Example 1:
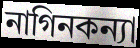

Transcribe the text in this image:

নাগিনকন্যা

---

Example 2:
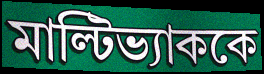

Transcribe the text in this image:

মাল্টিভ্যাককে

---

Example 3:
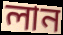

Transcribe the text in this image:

লান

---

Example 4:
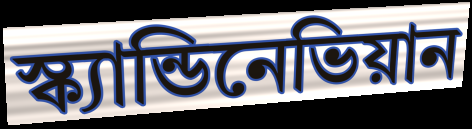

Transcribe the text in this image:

স্ক্যান্ডিনেভিয়ান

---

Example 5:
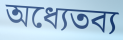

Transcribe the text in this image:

অধ্যেতব্য